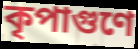
কৃপাগুণে